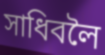
সাধিবলৈ